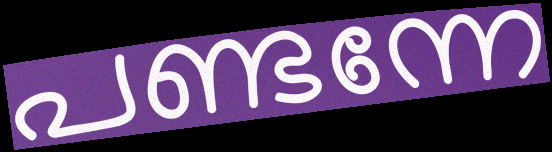
പണ്ടന്നേ